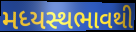
મધ્યસ્થભાવથી